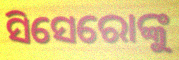
ସିସେରୋଙ୍କୁ